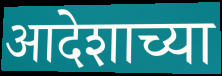
आदेशाच्या